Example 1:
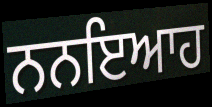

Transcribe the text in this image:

ਨਨਇਆਹ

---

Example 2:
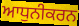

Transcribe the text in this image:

ਆਧੁਨੀਕਰਨ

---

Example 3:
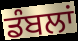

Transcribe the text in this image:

ਡੰਬਲਾਂ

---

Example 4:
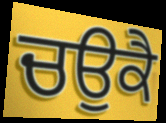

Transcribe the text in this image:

ਚਉਕੈ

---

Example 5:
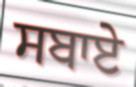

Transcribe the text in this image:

ਸਬਾਏ